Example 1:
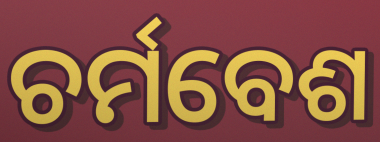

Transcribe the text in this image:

ଚର୍ମବେଶ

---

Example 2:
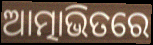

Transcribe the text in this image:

ଆତ୍ମାଭିତରେ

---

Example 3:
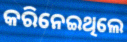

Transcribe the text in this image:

କରିନେଇଥିଲେ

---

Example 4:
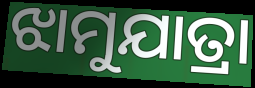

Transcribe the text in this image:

ଝାମୁଯାତ୍ରା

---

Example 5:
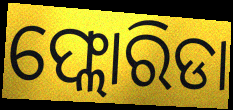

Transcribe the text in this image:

ଫ୍ଲୋରିଡା